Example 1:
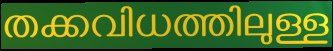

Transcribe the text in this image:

തക്കവിധത്തിലുള്ള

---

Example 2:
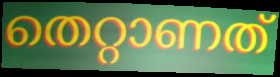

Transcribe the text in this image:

തെറ്റാണത്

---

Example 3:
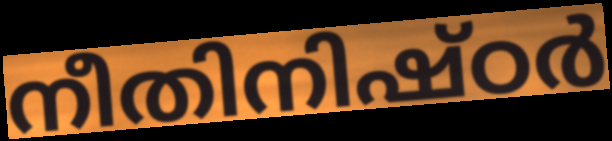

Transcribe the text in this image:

നീതിനിഷ്ഠർ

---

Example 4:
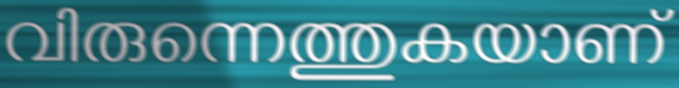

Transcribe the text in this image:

വിരുന്നെത്തുകയാണ്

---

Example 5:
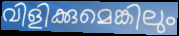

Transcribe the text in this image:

വിളിക്കുമെങ്കിലും